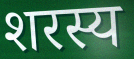
शरस्य